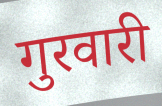
गुरवारी